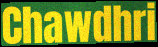
Chawdhri